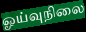
ஓய்வுநிலை